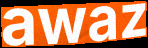
awaz